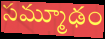
సమ్మూఢం